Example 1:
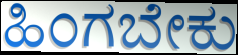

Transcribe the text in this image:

ಹಿಂಗಬೇಕು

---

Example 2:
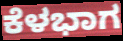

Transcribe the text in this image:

ಕೆಳಭಾಗ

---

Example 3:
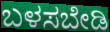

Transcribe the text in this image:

ಬಳಸಬೇಡಿ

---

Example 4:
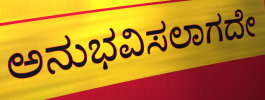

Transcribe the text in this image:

ಅನುಭವಿಸಲಾಗದೇ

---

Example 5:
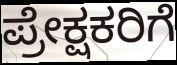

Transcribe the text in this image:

ಪ್ರೇಕ್ಷಕರಿಗೆ